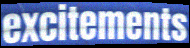
excitements